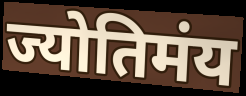
ज्योतिमंय